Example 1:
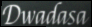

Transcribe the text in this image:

Dwadasa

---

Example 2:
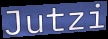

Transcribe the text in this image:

Jutzi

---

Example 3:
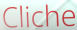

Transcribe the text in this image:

Cliche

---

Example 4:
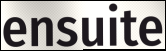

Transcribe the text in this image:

ensuite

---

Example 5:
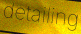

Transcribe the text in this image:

detailing